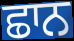
ਛਾਨ